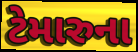
ટેમારુના